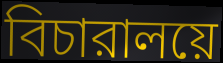
বিচারালয়ে